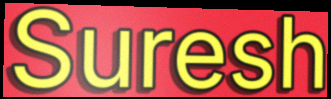
Suresh